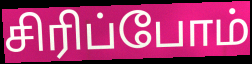
சிரிப்போம்